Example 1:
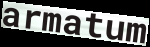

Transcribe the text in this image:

armatum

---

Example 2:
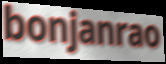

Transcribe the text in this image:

bonjanrao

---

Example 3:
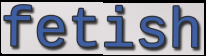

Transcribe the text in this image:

fetish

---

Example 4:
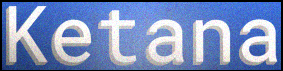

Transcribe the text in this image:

Ketana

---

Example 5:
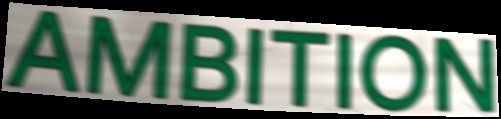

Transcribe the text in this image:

AMBITION